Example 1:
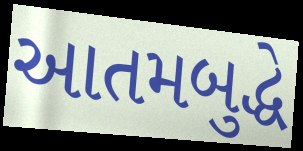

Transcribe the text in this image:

આતમબુદ્ધે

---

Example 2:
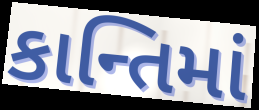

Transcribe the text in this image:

કાન્તિમાં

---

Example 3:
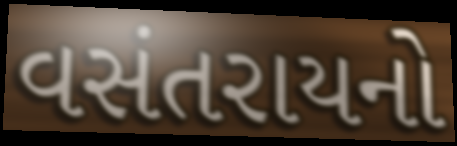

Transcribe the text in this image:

વસંતરાયનો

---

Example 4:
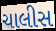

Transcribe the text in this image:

ચાલીસ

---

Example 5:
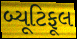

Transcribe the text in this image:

બ્યૂટિફૂલ